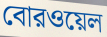
বোরওয়েল